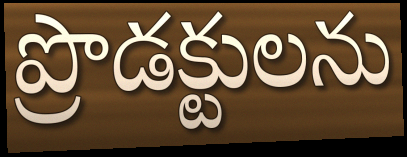
ప్రొడక్టులను